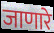
जाणारे